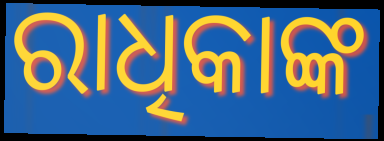
ରାଧିକାଙ୍କ